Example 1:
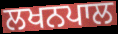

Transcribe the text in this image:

ਲਖਨਪਾਲ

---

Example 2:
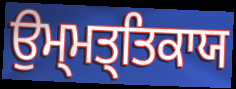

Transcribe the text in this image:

ਉਮ੍ਮਤ੍ਤਿਕਾਯ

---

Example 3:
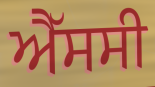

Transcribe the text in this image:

ਐੱਸਸੀ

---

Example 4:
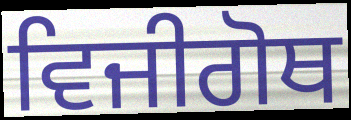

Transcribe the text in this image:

ਵਿਜੀਗੋਥ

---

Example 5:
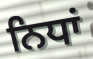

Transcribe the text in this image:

ਨਿਧਾਂ